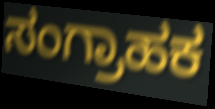
ಸಂಗ್ರಾಹಕ